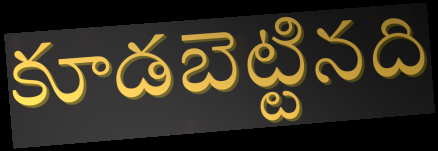
కూడబెట్టినది